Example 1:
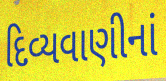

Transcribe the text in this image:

દિવ્યવાણીનાં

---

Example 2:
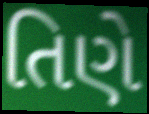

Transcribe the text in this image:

તિણે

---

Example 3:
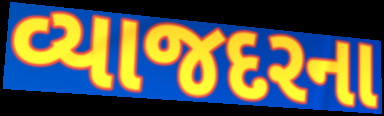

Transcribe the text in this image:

વ્યાજદરના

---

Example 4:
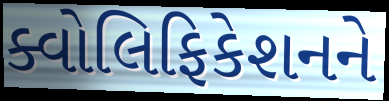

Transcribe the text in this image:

ક્વોલિફિકેશનને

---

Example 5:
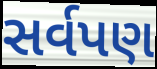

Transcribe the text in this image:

સર્વપણ